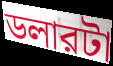
ডলারটা